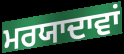
ਮਰਯਾਦਾਵਾਂ